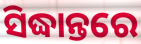
ସିଦ୍ଧାନ୍ତରେ